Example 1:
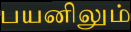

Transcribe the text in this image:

பயனிலும்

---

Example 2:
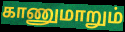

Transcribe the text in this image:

காணுமாறும்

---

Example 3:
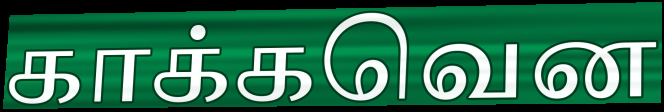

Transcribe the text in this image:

காக்கவென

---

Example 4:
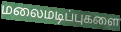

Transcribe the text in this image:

மலைமடிப்புகளை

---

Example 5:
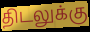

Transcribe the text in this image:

திடலுக்கு